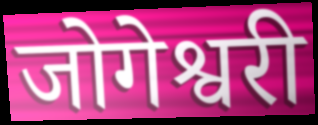
जोगेश्वरी